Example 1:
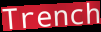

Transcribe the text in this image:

Trench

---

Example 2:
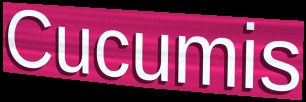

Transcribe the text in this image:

Cucumis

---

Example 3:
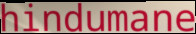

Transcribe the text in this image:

hindumane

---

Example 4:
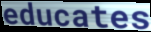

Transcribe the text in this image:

educates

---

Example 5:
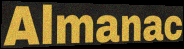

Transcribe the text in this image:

Almanac